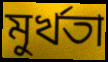
মুর্খতা